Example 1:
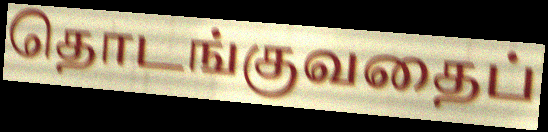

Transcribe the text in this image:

தொடங்குவதைப்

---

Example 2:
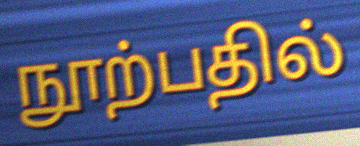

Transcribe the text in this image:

நூற்பதில்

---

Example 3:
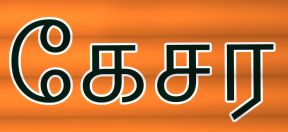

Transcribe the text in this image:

கேசர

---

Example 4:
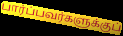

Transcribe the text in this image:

பார்ப்பவர்களுக்குப்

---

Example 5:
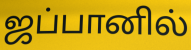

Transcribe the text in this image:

ஜப்பானில்